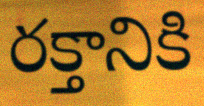
రక్తానికి